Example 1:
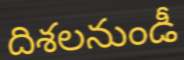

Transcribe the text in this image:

దిశలనుండీ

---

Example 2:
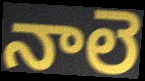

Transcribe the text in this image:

నాలె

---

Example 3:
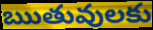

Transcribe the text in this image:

ఋతువులకు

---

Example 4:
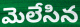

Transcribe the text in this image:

మెలేసిన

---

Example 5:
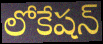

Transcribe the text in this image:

లోకేషన్